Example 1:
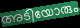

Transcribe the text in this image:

അടിയോരും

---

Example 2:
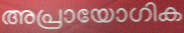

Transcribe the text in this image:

അപ്രായോഗിക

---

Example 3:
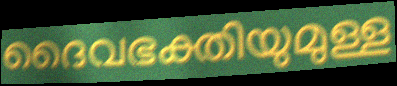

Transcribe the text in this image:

ദൈവഭക്തിയുമുള്ള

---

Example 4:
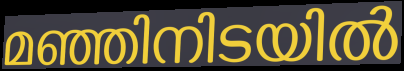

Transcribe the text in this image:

മഞ്ഞിനിടയിൽ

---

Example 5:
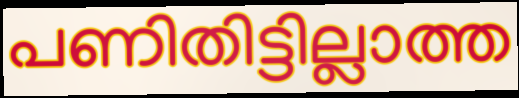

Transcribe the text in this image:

പണിതിട്ടില്ലാത്ത